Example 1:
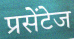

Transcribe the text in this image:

प्रसेंटेज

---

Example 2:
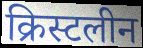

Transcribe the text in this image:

क्रिस्टलीन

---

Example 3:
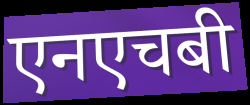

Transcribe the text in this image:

एनएचबी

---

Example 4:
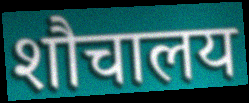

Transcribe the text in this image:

शौचालय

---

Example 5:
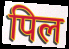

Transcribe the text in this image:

पिल